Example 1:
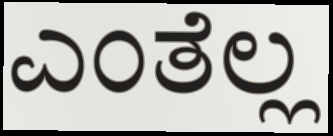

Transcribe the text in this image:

ಎಂತೆಲ್ಲ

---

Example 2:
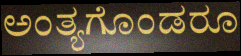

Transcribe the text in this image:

ಅಂತ್ಯಗೊಂಡರೂ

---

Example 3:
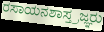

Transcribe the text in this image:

ರಸಾಯನಶಾಸ್ತ್ರಜ್ಞರು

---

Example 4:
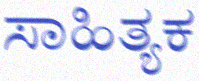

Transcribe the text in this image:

ಸಾಹಿತ್ಯಕ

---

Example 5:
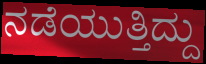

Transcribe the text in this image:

ನಡೆಯುತ್ತಿದ್ದು